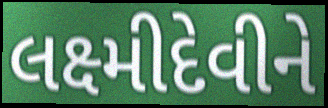
લક્ષ્મીદેવીને